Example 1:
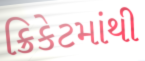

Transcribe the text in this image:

ક્રિકેટમાંથી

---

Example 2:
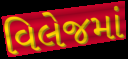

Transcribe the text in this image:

વિલેજમાં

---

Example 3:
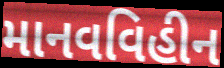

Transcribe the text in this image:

માનવવિહીન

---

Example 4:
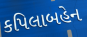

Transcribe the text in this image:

કપિલાબહેન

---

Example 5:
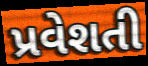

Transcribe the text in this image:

પ્રવેશતી